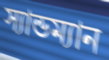
স্যান্ডম্যান